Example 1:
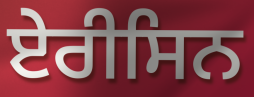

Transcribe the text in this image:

ਏਰੀਸਿਨ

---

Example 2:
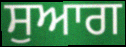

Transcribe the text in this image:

ਸੁਆਗ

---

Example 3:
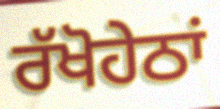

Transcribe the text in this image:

ਰੱਖੋਹੇਠਾਂ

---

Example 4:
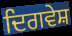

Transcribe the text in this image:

ਦਿਗਵੇਸ਼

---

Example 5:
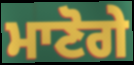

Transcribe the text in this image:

ਮਾਣੋਗੇ